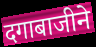
दगाबाजीने